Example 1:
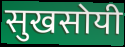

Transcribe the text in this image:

सुखसोयी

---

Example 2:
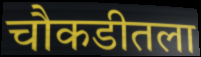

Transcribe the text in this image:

चौकडीतला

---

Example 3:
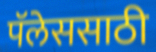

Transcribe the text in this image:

पॅलेससाठी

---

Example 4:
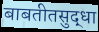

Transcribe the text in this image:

बाबतीतसुद्धा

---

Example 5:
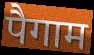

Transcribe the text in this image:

पैगाम